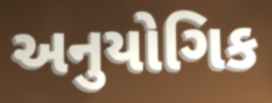
અનુયોગિક